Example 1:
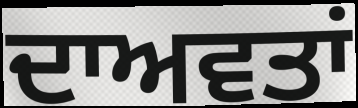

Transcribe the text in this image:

ਦਾਅਵਤਾਂ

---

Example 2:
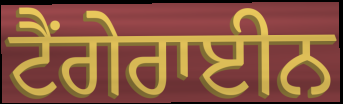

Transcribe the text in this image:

ਟੈਂਗੇਰਾਈਨ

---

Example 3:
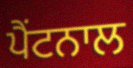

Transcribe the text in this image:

ਪੈਂਟਨਾਲ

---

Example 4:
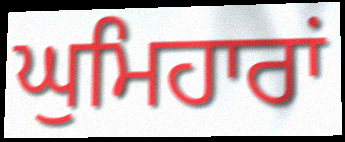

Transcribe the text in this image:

ਘੁਮਿਹਾਰਾਂ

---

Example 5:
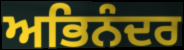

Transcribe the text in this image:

ਅਭਿਨੰਦਰ